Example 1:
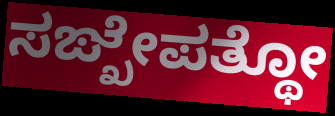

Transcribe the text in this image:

ಸಙ್ಖೇಪತ್ಥೋ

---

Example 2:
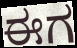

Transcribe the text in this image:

ಈಗ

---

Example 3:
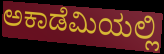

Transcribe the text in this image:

ಅಕಾಡೆಮಿಯಲ್ಲಿ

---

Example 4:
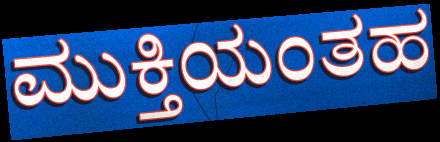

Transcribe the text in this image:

ಮುಕ್ತಿಯಂತಹ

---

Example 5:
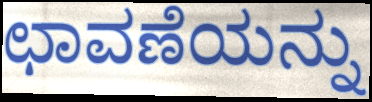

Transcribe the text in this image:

ಛಾವಣೆಯನ್ನು